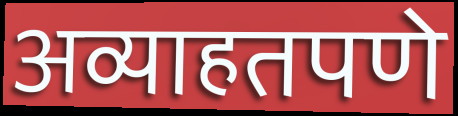
अव्याहतपणे